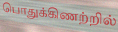
பொதுக்கிணற்றில்